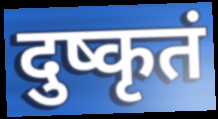
दुष्कृतं